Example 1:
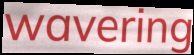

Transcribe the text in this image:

wavering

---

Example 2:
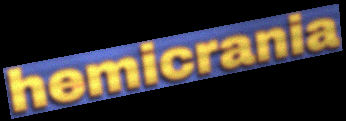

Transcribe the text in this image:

hemicrania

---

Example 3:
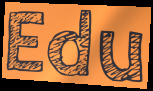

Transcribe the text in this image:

Edu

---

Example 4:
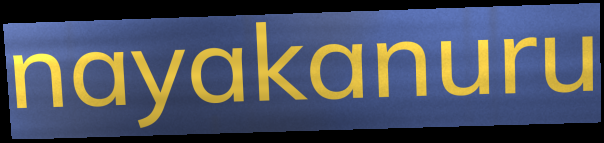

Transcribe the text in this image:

nayakanuru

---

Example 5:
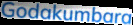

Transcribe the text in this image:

Godakumbara